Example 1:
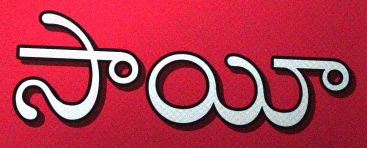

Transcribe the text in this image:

సాయీ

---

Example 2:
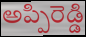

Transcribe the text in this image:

అప్పిరెడ్డి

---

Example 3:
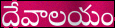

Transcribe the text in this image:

దేవాలయం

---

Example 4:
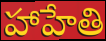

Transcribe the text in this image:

హాహేతి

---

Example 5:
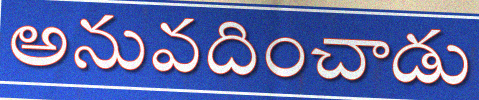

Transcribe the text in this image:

అనువదించాడు